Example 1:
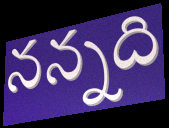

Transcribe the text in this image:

నన్నది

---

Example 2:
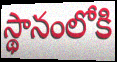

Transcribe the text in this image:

స్థానంలోకి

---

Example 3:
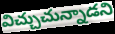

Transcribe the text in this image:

విచ్చుచున్నాడని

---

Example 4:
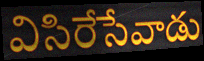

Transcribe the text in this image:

విసిరేసేవాడు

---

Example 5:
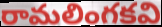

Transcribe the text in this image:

రామలింగకవి